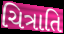
ચિત્રાતિ